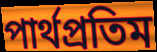
পার্থপ্রতিম